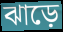
ঝাড়ে